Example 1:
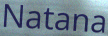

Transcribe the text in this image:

Natana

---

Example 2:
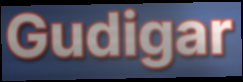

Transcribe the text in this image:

Gudigar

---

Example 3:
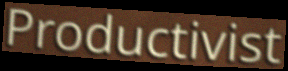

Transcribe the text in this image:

Productivist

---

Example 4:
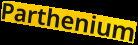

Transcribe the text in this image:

Parthenium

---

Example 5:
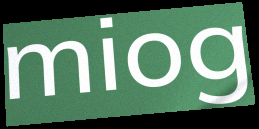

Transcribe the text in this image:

miog